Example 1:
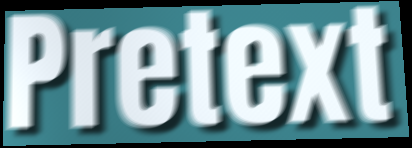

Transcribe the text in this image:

Pretext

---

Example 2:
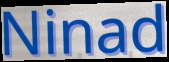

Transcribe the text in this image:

Ninad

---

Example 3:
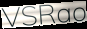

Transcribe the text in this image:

VSRao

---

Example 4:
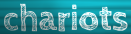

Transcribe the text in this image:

chariots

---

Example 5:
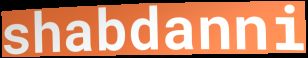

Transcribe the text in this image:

shabdanni